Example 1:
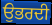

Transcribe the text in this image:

ਉਭਰਦੀ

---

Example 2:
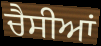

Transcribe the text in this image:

ਚੈਸੀਆਂ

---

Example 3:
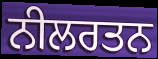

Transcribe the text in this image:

ਨੀਲਰਤਨ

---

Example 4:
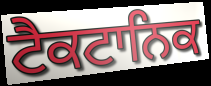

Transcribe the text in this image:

ਟੈਕਟਾਨਿਕ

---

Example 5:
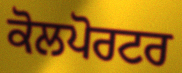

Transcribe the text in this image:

ਕੋਲਪੋਰਟਰ